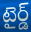
టైర్డ్